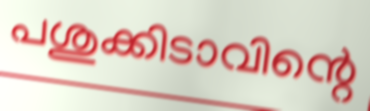
പശുക്കിടാവിന്റെ